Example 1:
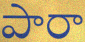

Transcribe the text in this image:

పారా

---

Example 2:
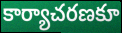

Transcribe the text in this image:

కార్యాచరణకూ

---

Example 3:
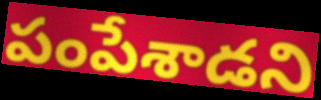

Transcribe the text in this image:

పంపేశాడని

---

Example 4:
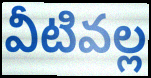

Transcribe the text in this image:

వీటివల్ల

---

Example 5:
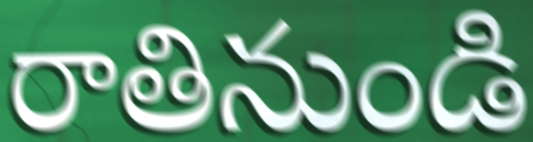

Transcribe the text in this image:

రాతినుండి